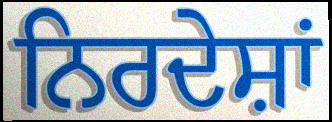
ਨਿਰਦੇਸ਼ਾਂ